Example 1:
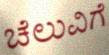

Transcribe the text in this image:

ಚೆಲುವಿಗೆ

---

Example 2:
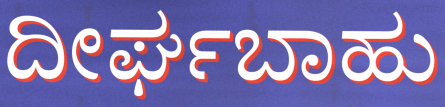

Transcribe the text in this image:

ದೀರ್ಘಬಾಹು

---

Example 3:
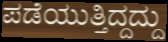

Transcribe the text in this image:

ಪಡೆಯುತ್ತಿದ್ದದ್ದು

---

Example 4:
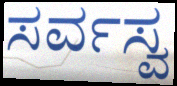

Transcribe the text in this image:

ಸರ್ವಸ್ವ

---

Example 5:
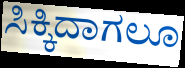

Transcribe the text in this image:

ಸಿಕ್ಕಿದಾಗಲೂ